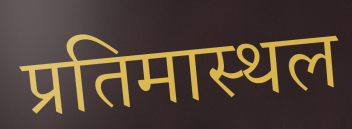
प्रतिमास्थल